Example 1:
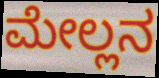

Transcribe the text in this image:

ಮೇಲ್ಲನ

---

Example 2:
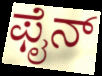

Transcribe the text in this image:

ಫೈನ್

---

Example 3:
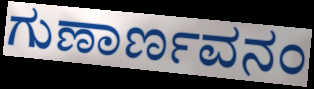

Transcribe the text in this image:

ಗುಣಾರ್ಣವನಂ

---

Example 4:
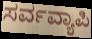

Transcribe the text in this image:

ಸರ್ವವ್ಯಾಪಿ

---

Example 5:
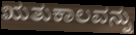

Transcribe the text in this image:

ಋತುಕಾಲವನ್ನು